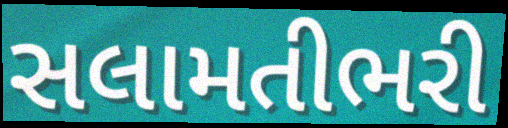
સલામતીભરી